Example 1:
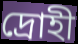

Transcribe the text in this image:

দ্রোহী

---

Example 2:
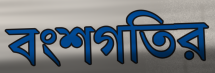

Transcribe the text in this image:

বংশগতির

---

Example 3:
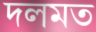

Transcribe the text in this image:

দলমত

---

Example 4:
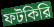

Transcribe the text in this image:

ফটকিরি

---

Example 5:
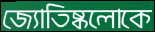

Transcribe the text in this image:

জ্যোতিষ্কলোকে